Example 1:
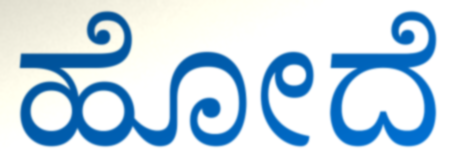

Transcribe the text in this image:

ಹೋದೆ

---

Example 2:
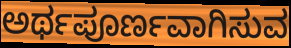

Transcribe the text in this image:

ಅರ್ಥಪೂರ್ಣವಾಗಿಸುವ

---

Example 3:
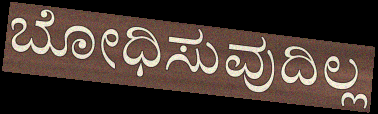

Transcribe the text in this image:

ಬೋಧಿಸುವುದಿಲ್ಲ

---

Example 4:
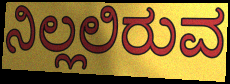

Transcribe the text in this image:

ನಿಲ್ಲಲಿರುವ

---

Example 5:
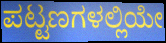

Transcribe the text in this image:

ಪಟ್ಟಣಗಳಲ್ಲಿಯೇ